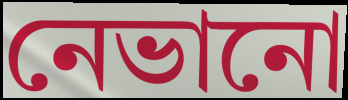
নেভানো